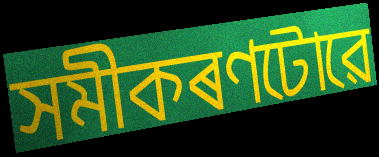
সমীকৰণটোৱে